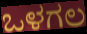
ಒಳಗಲ